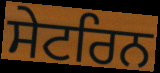
ਸੇਟਰਿਨ